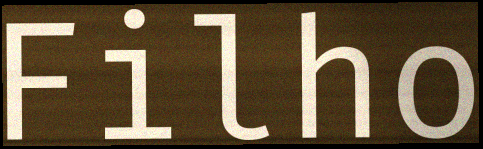
Filho